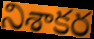
నిశాకర